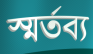
স্মৰ্তব্য